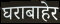
घराबाहेर